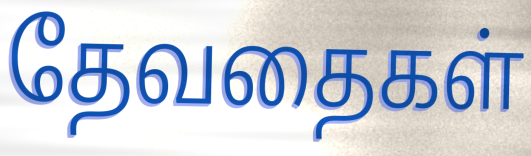
தேவதைகள்